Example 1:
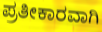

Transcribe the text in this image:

ಪ್ರತೀಕಾರವಾಗಿ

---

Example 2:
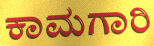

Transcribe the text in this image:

ಕಾಮಗಾರಿ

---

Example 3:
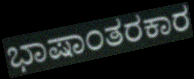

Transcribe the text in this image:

ಭಾಷಾಂತರಕಾರ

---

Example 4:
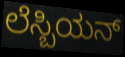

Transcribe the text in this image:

ಲೆಸ್ಬಿಯನ್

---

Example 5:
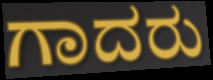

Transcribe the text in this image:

ಗಾದರು